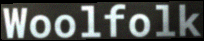
Woolfolk